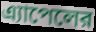
এ্যাপেলের